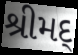
શ્રીમદ્‍